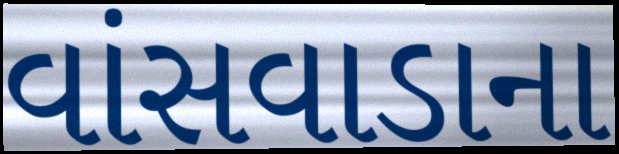
વાંસવાડાના